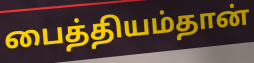
பைத்தியம்தான்